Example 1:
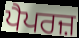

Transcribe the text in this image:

ਪੈਪਰਜ਼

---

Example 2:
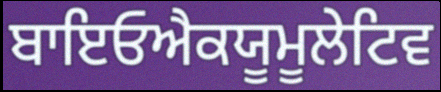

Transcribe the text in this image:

ਬਾਇਓਐਕਯੂਮੂਲੇਟਿਵ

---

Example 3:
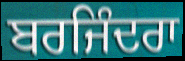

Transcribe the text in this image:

ਬਰਜਿੰਦਰਾ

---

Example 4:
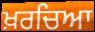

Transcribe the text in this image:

ਖ਼ਰਚਿਆ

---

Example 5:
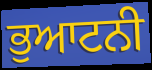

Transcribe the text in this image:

ਭੁਆਟਨੀ